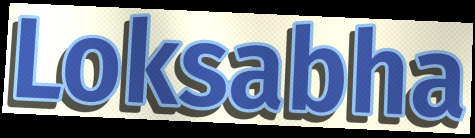
Loksabha